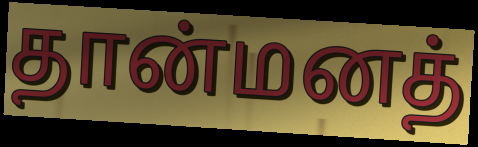
தான்மனத்